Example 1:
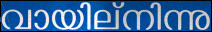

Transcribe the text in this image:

വായില്നിന്നു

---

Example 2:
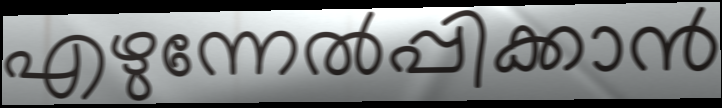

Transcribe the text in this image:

എഴുന്നേൽപ്പിക്കാൻ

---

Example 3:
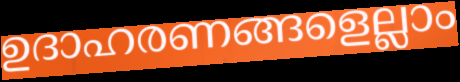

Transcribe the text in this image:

ഉദാഹരണങ്ങളെല്ലാം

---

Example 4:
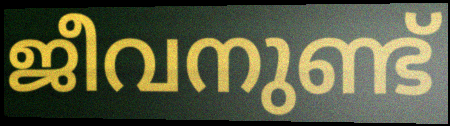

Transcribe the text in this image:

ജീവനുണ്ട്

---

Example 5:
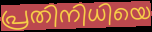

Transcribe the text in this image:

പ്രതിനിധിയെ